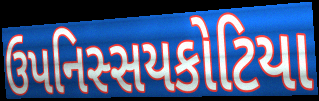
ઉપનિસ્સયકોટિયા